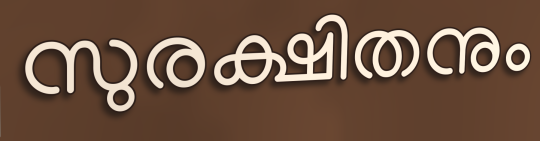
സുരക്ഷിതനും